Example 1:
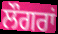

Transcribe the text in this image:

ਲੌਗਰਾਂ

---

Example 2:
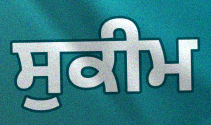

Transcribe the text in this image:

ਸੁਕੀਮ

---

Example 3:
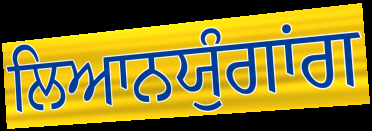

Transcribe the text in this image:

ਲਿਆਨਯੁੰਗਾਂਗ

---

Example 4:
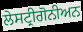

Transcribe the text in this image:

ਲੇਸਟ੍ਰੀਗੋਨੀਅਨ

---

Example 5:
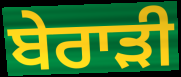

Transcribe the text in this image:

ਬੇਰਾੜੀ